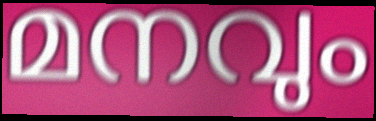
മനവും